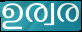
ഉര്വര